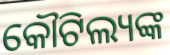
କୌଟିଲ୍ୟଙ୍କ